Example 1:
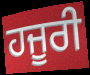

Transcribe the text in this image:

ਹਜੂਰੀ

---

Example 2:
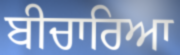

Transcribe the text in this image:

ਬੀਚਾਰਿਆ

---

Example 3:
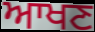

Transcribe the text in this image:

ਆਖਣ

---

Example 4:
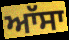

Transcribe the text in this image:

ਆੱਸਾ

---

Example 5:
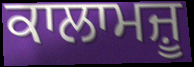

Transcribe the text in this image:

ਕਾਲਾਮਜ਼ੂ